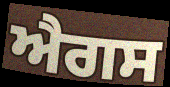
ਐਗਸ